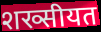
शख्सीयत